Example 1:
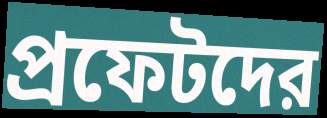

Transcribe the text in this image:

প্রফেটদের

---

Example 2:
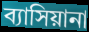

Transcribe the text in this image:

ব্যাসিয়ানা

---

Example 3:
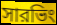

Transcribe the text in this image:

সারভিং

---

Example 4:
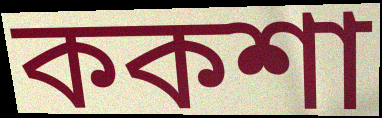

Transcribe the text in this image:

ককশা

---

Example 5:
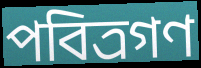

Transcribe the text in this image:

পবিত্রগণ